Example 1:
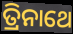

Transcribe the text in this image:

ତ୍ରିନାଥେ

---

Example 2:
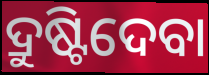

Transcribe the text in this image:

ଦ୍ରୁଷ୍ଟିଦେବା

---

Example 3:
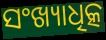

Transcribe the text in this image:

ସଂଖ୍ୟାଧିତ୍କ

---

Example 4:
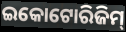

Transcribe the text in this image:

ଇକୋଟୋରିଜିମ୍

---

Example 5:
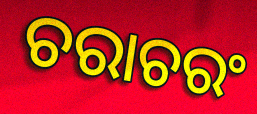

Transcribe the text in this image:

ଚରାଚରଂ